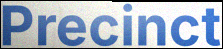
Precinct